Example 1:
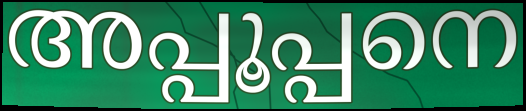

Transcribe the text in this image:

അപ്പൂപ്പനെ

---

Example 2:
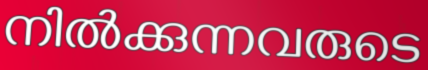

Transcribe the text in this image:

നിൽക്കുന്നവരുടെ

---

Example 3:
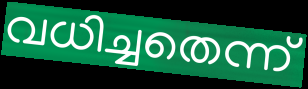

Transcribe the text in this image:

വധിച്ചതെന്ന്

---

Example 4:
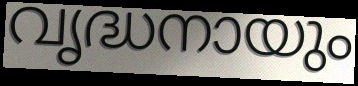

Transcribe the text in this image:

വൃദ്ധനായും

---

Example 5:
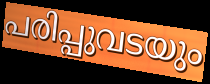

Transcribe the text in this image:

പരിപ്പുവടയും